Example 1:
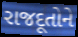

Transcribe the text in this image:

રાજદૂતોને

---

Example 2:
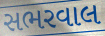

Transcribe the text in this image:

સભરવાલ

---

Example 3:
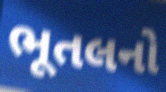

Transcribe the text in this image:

ભૂતલનો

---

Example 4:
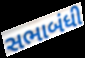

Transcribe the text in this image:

સભાબંધી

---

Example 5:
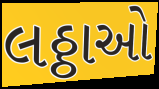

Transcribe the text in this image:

લઠ્ઠાઓ